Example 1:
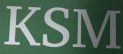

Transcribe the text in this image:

KSM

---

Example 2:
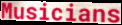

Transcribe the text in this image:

Musicians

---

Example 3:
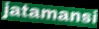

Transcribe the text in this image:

jatamansi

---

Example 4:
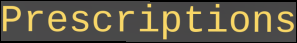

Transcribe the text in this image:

Prescriptions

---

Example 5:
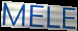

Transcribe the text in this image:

MELE